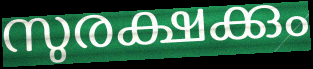
സുരക്ഷക്കും